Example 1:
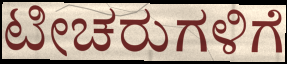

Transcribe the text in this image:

ಟೀಚರುಗಳಿಗೆ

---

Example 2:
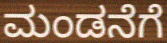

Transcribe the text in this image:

ಮಂಡನೆಗೆ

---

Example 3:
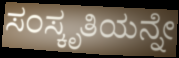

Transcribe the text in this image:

ಸಂಸ್ಕೃತಿಯನ್ನೇ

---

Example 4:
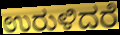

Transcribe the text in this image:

ಉರುಳಿದರೆ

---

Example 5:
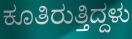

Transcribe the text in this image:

ಕೂತಿರುತ್ತಿದ್ದಳು